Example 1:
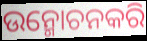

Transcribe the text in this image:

ଉନ୍ମୋଚନକରି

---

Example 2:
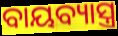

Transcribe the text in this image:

ବାୟବ୍ୟାସ୍ତ୍ର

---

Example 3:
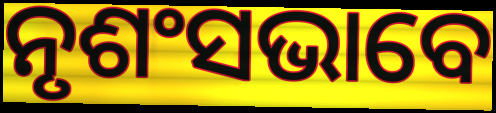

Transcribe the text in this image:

ନୃଶଂସଭାବେ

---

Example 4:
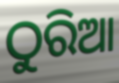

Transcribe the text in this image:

ଠୁରିଆ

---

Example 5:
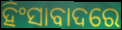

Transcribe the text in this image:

ହିଂସାବାଦରେ